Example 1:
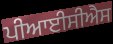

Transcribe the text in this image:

ਪੀਆਈਸੀਐਸ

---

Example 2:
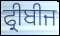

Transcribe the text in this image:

ਫ੍ਰੀਬੀਜ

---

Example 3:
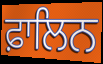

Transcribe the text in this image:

ਫ਼ਾਲਿਨ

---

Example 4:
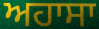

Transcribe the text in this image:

ਅਹਾਸਾ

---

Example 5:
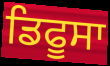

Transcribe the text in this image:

ਡਿਫੂਸਾ